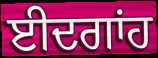
ਈਦਗਾਂਹ